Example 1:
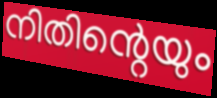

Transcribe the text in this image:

നിതിന്റെയും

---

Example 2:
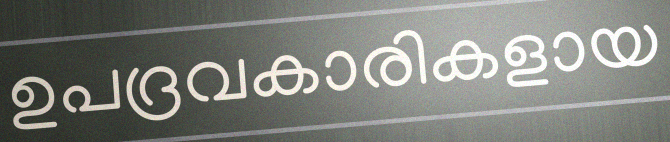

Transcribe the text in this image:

ഉപദ്രവകാരികളായ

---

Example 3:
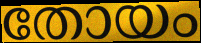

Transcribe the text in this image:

തോയം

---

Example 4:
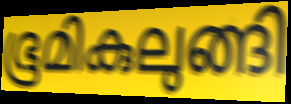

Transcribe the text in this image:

ഭൂമികുലുങ്ങി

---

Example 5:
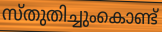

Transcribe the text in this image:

സ്തുതിച്ചുംകൊണ്ട്